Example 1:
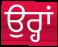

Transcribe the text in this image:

ਉਰ੍ਹਾਂ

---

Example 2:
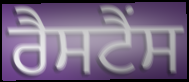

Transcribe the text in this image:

ਰੈਸਟੈਂਸ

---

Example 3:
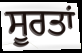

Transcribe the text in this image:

ਸੂਰਤਾਂ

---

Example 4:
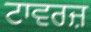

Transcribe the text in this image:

ਟਾਵਰਜ਼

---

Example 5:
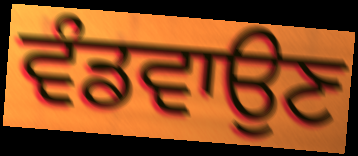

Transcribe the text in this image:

ਵੰਡਵਾਉਣ